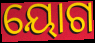
ୟୋଗ